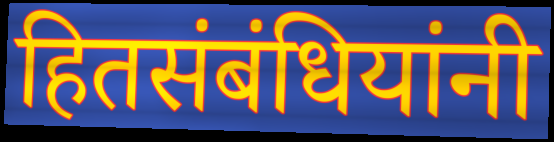
हितसंबंधियांनी